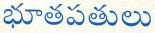
భూతపతులు